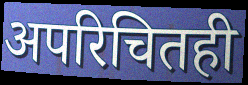
अपरिचितही